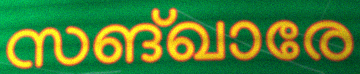
സങ്ഖാരേ